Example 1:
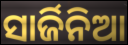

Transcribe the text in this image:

ସାର୍ଜିନିଆ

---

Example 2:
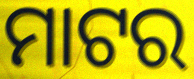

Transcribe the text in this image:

ମାଟର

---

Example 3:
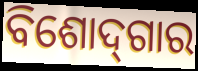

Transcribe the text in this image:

ବିଶୋଦ୍‌ଗାର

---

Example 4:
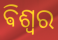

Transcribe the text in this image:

ଵିଶ୍ୱର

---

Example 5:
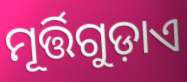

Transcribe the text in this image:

ମୂର୍ତ୍ତିଗୁଡ଼ାଏ